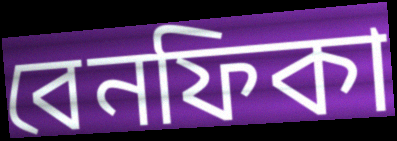
বেনফিকা